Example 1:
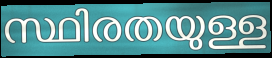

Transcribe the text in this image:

സ്ഥിരതയുള്ള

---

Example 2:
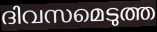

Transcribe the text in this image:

ദിവസമെടുത്ത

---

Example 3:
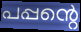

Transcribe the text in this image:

പപ്പന്റെ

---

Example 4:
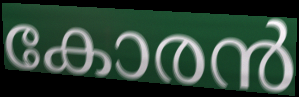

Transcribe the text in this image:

കോരൻ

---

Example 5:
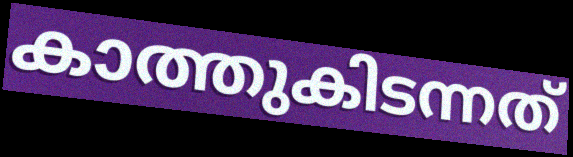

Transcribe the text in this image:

കാത്തുകിടന്നത്